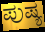
ಪುಷ್ಯ